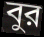
বুর